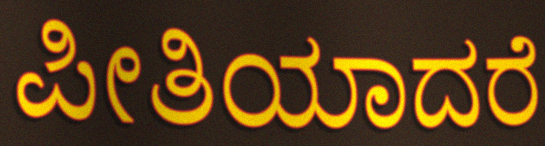
ಪೀತಿಯಾದರೆ